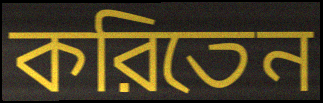
করিতেন